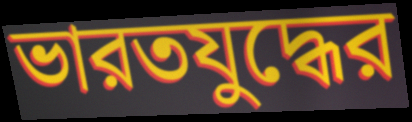
ভারতযুদ্ধের